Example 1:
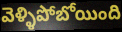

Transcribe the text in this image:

వెళ్ళిపోబోయింది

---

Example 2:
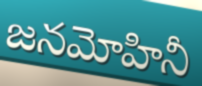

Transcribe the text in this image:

జనమోహినీ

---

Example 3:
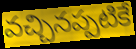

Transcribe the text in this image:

వచ్చినప్పటికే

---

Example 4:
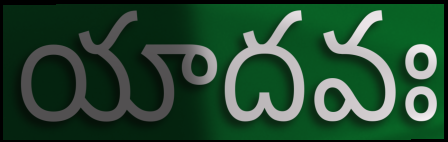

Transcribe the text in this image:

యాదవః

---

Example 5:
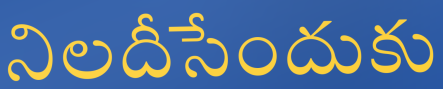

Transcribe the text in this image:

నిలదీసేందుకు